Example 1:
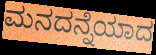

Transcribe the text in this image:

ಮನದನ್ನೆಯಾದ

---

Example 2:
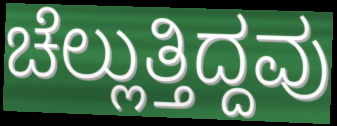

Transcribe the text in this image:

ಚೆಲ್ಲುತ್ತಿದ್ದವು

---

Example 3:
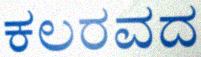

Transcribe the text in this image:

ಕಲರವದ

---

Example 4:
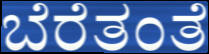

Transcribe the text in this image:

ಬೆರೆತಂತೆ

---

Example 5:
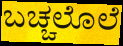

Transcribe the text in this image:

ಬಚ್ಚಲೊಲೆ